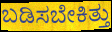
ಬಡಿಸಬೇಕಿತ್ತು